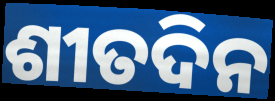
ଶୀତଦିନ